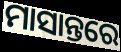
ମାସାନ୍ତରେ